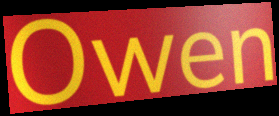
Owen